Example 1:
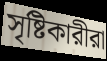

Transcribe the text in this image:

সৃষ্টিকারীরা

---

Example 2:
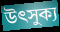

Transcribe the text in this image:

উৎসুক্য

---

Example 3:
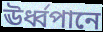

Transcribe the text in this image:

ঊর্ধ্বপানে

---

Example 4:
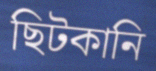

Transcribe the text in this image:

ছিটকানি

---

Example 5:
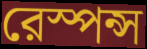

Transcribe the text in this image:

রেস্পন্স